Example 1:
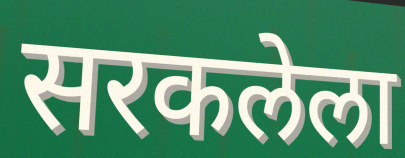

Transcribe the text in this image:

सरकलेला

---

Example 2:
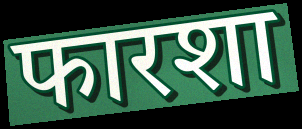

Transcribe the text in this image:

फारशा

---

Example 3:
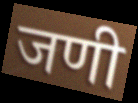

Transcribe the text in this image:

जणी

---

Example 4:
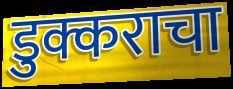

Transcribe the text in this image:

डुक्कराचा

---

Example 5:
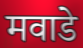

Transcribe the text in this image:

मवाडे